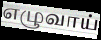
எழுவாய்